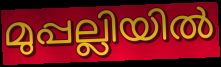
മുപ്പല്ലിയിൽ